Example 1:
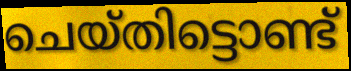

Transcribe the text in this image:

ചെയ്തിട്ടൊണ്ട്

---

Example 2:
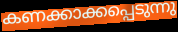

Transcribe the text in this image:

കണക്കാക്കപ്പെടുന്നു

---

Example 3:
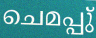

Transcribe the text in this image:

ചെമപ്പു്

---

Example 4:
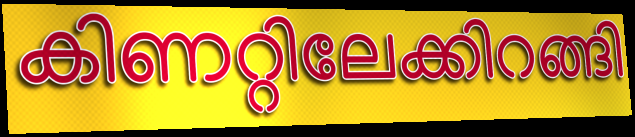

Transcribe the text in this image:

കിണറ്റിലേക്കിറങ്ങി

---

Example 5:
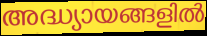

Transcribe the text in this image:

അദ്ധ്യായങ്ങളിൽ